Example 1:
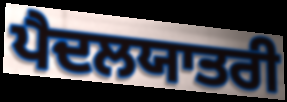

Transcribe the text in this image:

ਪੈਦਲਯਾਤਰੀ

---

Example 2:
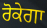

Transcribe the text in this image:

ਰੋਕੇਗਾ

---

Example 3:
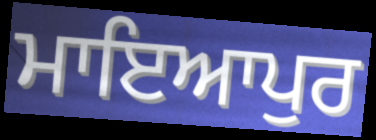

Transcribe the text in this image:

ਮਾਇਆਪੁਰ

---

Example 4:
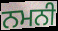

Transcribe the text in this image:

ਨਮਨੀ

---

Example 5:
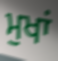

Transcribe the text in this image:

ਮੁਖਾਂ